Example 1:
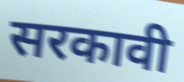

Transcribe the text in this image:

सरकावी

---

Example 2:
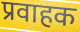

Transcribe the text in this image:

प्रवाहक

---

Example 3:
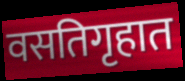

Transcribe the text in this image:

वसतिगृहात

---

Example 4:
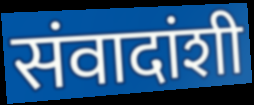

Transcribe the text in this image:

संवादांशी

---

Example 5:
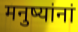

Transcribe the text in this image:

मनुष्यांनां